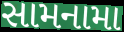
સામનામા